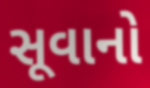
સૂવાનો